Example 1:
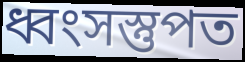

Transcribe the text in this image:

ধ্বংসস্তুপত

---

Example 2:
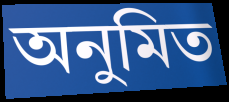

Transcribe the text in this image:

অনুমিত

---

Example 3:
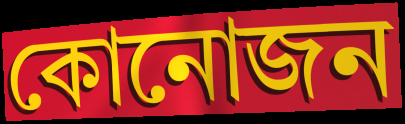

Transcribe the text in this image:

কোনোজন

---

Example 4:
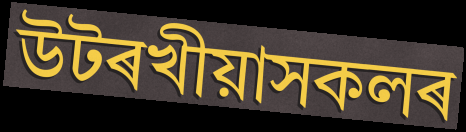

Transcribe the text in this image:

উটৰখীয়াসকলৰ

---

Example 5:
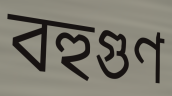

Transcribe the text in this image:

বহুগুণ